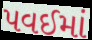
પવઈમાં